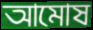
আমোষ